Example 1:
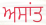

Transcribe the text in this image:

ਅਸਾਂਤ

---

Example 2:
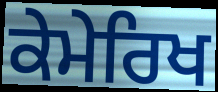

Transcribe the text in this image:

ਕੇਮੇਰਿਖ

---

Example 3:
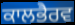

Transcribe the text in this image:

ਕਾਲਭੈਰਵ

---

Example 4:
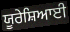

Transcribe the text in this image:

ਯੂਰੇਸ਼ਿਆਈ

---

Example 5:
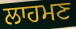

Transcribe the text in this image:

ਲਾਹਮਣ